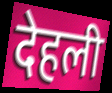
देहली